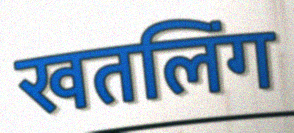
खतलिंग